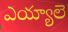
ఎయ్యాలె